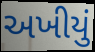
અખીયું